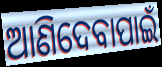
ଆଣିଦେବାପାଇଁ